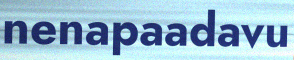
nenapaadavu